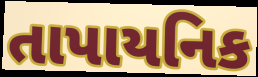
તાપાયનિક